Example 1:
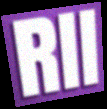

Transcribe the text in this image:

RII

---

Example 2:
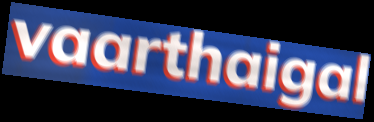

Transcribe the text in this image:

vaarthaigal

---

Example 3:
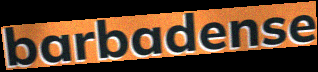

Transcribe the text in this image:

barbadense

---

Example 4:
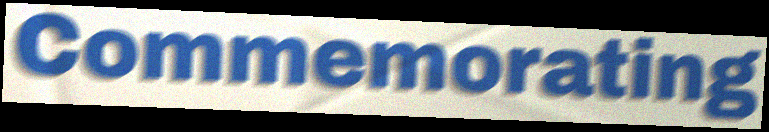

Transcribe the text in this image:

Commemorating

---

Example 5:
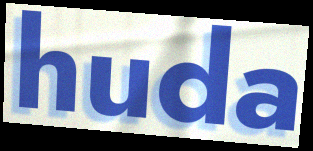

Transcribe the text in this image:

huda